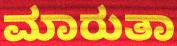
ಮಾರುತಾ